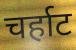
चर्हाट